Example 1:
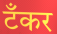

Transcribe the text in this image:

टँकर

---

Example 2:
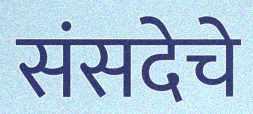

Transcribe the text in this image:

संसदेचे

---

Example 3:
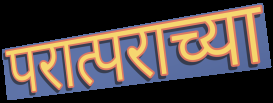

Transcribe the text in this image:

परात्पराच्या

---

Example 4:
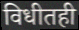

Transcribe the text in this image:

विधीतही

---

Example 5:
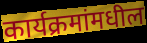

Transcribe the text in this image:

कार्यक्रमांमधील